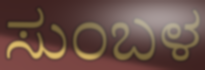
ಸುಂಬಳ